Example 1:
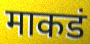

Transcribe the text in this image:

माकडं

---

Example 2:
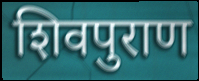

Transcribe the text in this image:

शिवपुराण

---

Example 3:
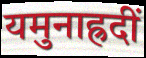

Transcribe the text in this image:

यमुनाह्रदीं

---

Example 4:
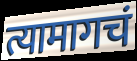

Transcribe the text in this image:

त्यामागचं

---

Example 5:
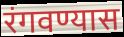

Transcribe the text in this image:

रंगवण्यास